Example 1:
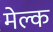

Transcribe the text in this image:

मेल्क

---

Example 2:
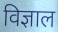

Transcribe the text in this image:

विज्ञाल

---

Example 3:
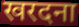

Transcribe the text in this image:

खरदना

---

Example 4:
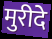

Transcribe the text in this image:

मुरीदे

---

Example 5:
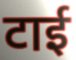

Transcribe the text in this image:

टाई